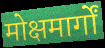
मोक्षमार्गों